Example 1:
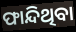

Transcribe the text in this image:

ଫାନ୍ଦିଥିବା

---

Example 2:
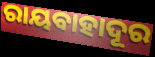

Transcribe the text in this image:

ରାୟବାହାଦୂର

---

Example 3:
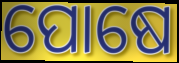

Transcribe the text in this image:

ପୋଷେ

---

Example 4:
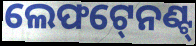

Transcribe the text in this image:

ଲେଫଟ୍‍ନେଣ୍ଟ୍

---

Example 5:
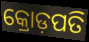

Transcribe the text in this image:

କ୍ରୋଡ଼ପତି